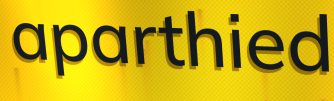
aparthied